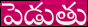
పెడుతు